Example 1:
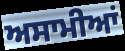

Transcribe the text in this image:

ਅਸਾਮੀਆਂ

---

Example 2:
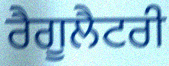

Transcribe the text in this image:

ਰੈਗੂਲੈਟਰੀ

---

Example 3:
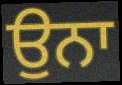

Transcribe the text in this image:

ਉਨਾ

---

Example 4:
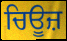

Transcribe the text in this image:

ਚਿਊਜ਼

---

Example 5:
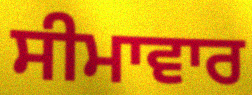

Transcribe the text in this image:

ਸੀਮਾਵਾਰ